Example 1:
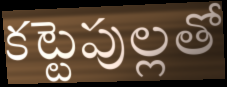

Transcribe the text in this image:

కట్టెపుల్లతో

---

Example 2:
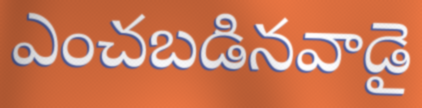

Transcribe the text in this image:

ఎంచబడినవాడై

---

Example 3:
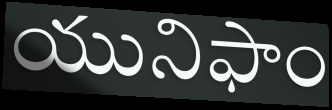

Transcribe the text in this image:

యునిఫాం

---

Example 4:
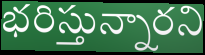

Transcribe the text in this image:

భరిస్తున్నారని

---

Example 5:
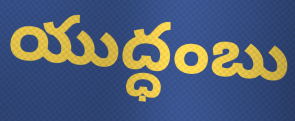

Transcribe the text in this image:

యుద్ధంబు